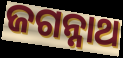
ଜଗନ୍ନାଥ